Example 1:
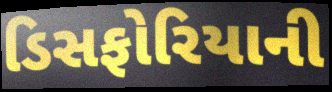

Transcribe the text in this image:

ડિસફોરિયાની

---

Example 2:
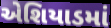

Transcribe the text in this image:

એશિયાડમાં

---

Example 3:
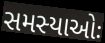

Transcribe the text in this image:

સમસ્યાઓઃ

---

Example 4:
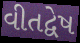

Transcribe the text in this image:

વીતદ્વેષ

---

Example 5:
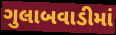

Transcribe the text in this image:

ગુલાબવાડીમાં